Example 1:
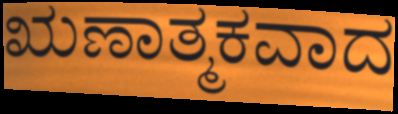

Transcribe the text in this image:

ಋಣಾತ್ಮಕವಾದ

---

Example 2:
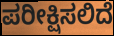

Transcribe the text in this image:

ಪರೀಕ್ಷಿಸಲಿದೆ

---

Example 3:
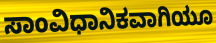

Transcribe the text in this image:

ಸಾಂವಿಧಾನಿಕವಾಗಿಯೂ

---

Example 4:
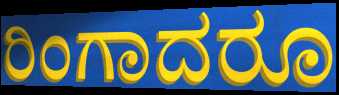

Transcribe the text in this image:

ರಿಂಗಾದರೂ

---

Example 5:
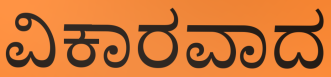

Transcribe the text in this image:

ವಿಕಾರವಾದ